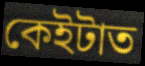
কেইটাত